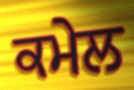
ਕਮੇਲ